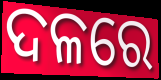
ଦଳରେ